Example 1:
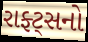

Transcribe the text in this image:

રાફ્ટ્સનો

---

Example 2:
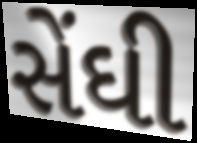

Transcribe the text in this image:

સેંઘી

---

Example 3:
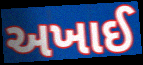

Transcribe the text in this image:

અખાઈ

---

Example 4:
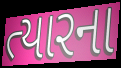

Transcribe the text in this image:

ત્યારના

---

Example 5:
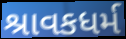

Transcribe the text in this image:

શ્રાવકધર્મ